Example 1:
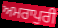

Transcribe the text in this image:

ਅਮਰਾਪੁਰੀ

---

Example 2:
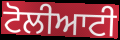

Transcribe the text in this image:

ਟੋਲੀਆਟੀ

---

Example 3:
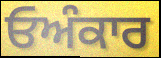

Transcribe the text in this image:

ਓਅੰਕਾਰ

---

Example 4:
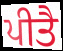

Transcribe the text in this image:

ਪੀਤੈ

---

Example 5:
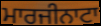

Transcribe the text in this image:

ਮਾਰਜੀਨਾਟਾ